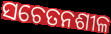
ସଚେତନଶୀଳ